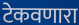
टेकवणारा